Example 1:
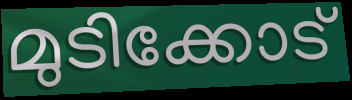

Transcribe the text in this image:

മുടിക്കോട്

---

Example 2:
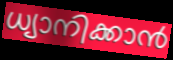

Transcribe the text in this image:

ധ്യാനിക്കാൻ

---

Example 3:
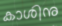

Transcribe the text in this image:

കാശിനു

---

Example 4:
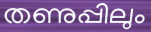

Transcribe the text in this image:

തണുപ്പിലും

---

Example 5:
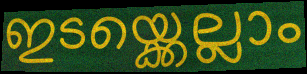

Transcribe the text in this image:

ഇടയ്ക്കെല്ലാം